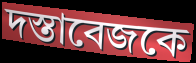
দস্তাবেজকে